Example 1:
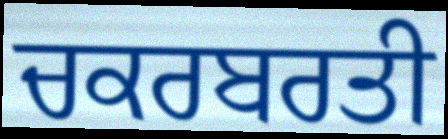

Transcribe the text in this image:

ਚਕਰਬਰਤੀ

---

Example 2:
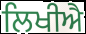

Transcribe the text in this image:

ਲਿਖੀਐ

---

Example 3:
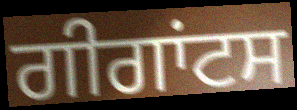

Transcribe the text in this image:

ਗੀਗਾਂਟਸ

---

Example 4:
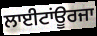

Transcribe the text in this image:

ਲਾਈਟਾਂਊਰਜਾ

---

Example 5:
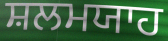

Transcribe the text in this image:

ਸ਼ਲਮਯਾਹ